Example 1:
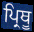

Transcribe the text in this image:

ਪ੍ਰਿਥੂ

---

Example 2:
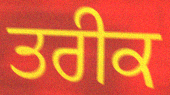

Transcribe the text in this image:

ਤਰੀਕ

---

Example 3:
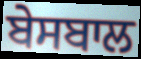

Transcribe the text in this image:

ਬੇਸਬਾਲ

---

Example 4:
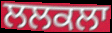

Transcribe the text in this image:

ਲਲਕਲਾ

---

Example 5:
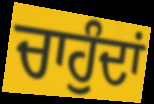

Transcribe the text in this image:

ਚਾਹੁੰਦਾਂ